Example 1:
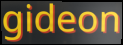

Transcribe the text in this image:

gideon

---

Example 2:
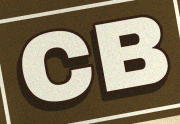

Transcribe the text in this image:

CB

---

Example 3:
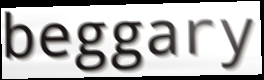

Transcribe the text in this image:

beggary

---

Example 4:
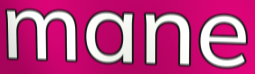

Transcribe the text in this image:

mane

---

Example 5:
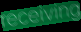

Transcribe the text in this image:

receiving